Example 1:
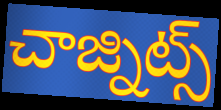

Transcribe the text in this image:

చాజ్నిట్స్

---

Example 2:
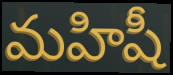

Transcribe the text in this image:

మహిషీ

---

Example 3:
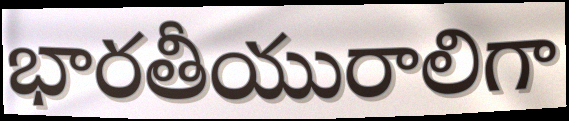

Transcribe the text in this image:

భారతీయురాలిగా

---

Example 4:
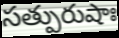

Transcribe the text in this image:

సత్పురుషాః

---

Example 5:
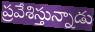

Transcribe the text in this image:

ప్రవేశిస్తున్నాడు